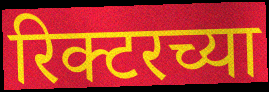
रिक्टरच्या